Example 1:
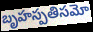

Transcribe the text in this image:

బృహస్పతిసమో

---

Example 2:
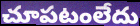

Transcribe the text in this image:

చూపటంలేదు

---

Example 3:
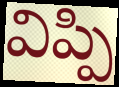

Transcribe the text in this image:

విప్పి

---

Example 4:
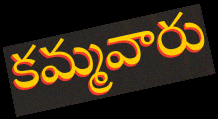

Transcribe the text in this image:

కమ్మవారు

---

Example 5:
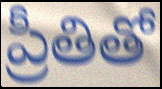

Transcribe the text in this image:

ప్రీతితో